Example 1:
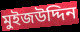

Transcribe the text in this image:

মুইজউদ্দিন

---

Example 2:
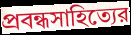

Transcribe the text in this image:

প্রবন্ধসাহিত্যের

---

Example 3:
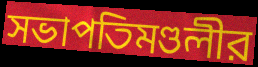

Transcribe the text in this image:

সভাপতিমণ্ডলীর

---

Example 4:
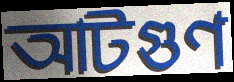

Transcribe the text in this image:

আটগুণ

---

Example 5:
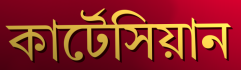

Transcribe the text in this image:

কার্টেসিয়ান